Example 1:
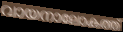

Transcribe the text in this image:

വായനാലോകത്ത്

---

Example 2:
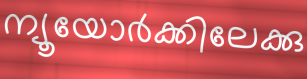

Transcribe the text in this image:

ന്യൂയോർക്കിലേക്കു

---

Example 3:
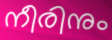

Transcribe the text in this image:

നീരിനും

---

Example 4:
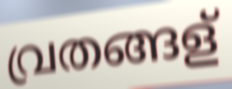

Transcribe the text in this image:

വ്രതങ്ങള്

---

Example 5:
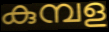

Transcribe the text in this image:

കുമ്പള